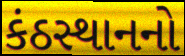
કંઠસ્થાનનો